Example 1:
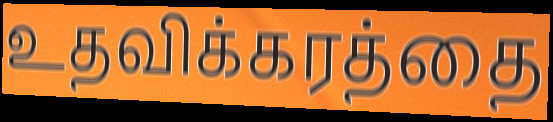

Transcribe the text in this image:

உதவிக்கரத்தை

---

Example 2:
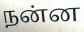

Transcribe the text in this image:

நன்ன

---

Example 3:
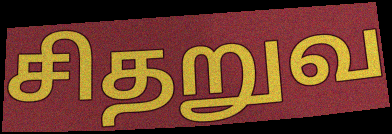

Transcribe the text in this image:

சிதறுவ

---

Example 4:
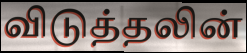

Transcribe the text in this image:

விடுத்தலின்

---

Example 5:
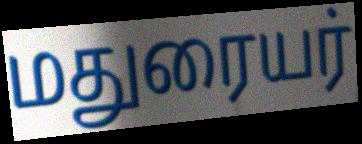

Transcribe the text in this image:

மதுரையர்